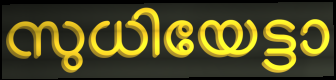
സുധിയേട്ടാ